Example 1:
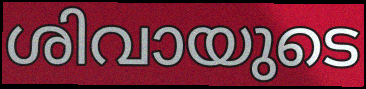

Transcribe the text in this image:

ശിവായുടെ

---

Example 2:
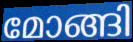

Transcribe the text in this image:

മോങ്ങി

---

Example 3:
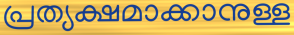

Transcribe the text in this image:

പ്രത്യക്ഷമാക്കാനുള്ള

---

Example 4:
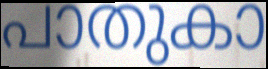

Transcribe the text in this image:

പാതുകാ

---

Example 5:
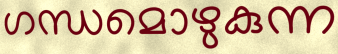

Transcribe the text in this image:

ഗന്ധമൊഴുകുന്ന